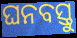
ଘନବସ୍ତୁ